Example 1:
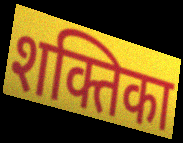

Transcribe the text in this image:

शक्तिका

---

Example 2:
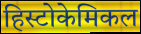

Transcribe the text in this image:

हिस्टोकेमिकल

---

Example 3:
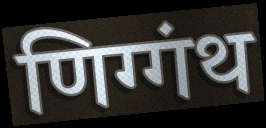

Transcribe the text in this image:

णिग्गंथ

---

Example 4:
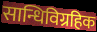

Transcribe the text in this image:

सान्धिविग्रहिक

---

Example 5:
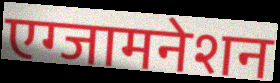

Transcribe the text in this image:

एग्जामनेशन